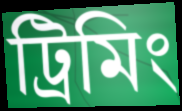
ট্রিমিং